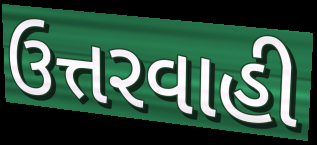
ઉત્તરવાહી